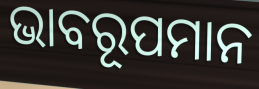
ଭାବରୂପମାନ